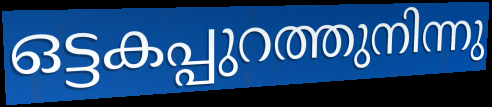
ഒട്ടകപ്പുറത്തുനിന്നു